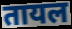
तायल